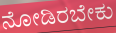
ನೋಡಿರಬೇಕು